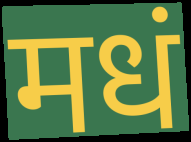
मधं